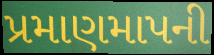
પ્રમાણમાપની